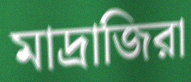
মাদ্রাজিরা